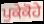
ਪੁਕੇਕੋਹੇ